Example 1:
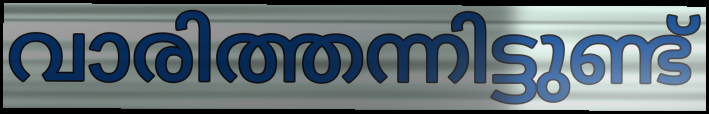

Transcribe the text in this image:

വാരിത്തന്നിട്ടുണ്ട്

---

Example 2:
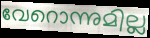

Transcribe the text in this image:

വേറൊന്നുമില്ല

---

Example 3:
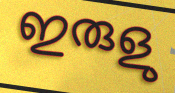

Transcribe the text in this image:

ഇരുളു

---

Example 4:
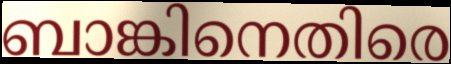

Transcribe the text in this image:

ബാങ്കിനെതിരെ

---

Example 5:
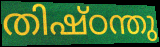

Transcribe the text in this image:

തിഷ്ഠന്തു